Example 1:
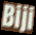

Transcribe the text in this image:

Biji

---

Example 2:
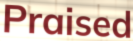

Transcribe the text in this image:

Praised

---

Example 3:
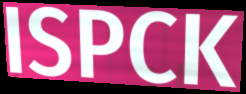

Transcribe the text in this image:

ISPCK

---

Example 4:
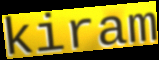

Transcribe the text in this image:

kiram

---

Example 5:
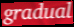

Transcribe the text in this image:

gradual